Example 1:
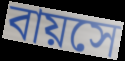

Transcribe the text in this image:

বায়সে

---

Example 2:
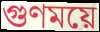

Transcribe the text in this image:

গুণময়ে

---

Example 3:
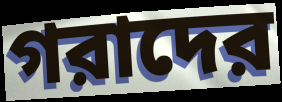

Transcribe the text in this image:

গরাদের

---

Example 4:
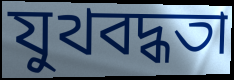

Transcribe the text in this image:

যুথবদ্ধতা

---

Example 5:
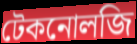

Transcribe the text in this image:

টেকনোলজি